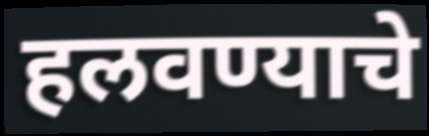
हलवण्याचे